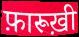
फ़ारूख़ी